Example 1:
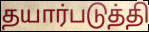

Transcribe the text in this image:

தயார்படுத்தி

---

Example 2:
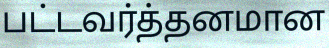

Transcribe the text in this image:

பட்டவர்த்தனமான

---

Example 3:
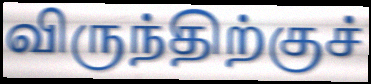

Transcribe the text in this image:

விருந்திற்குச்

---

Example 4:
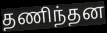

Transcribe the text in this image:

தணிந்தன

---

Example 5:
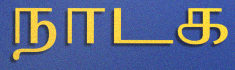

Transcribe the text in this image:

நாடக